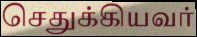
செதுக்கியவர்